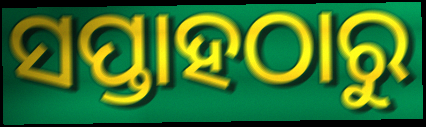
ସପ୍ତାହଠାରୁ